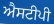
ਐਸਟੀਪੀ